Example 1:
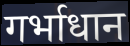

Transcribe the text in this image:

गर्भाधान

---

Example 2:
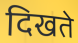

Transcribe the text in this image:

दिखते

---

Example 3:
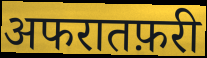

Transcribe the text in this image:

अफरातफ़री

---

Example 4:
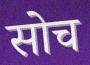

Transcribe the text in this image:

सोच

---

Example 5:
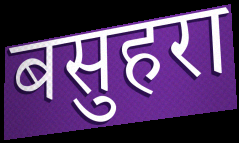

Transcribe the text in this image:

बसुहरा